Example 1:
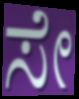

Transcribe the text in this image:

ಸೇ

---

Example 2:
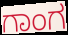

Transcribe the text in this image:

ಗಾಂಗ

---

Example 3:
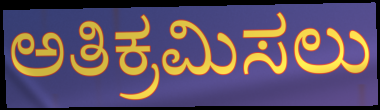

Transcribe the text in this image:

ಅತಿಕ್ರಮಿಸಲು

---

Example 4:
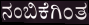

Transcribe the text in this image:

ನಂಬಿಕೆಗಿಂತ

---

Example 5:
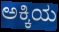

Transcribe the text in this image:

ಅಕ್ಕಿಯ